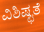
ವಿಶಿಷ್ಟತೆ